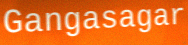
Gangasagar